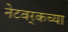
नेटवर्कच्या